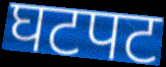
घटपट